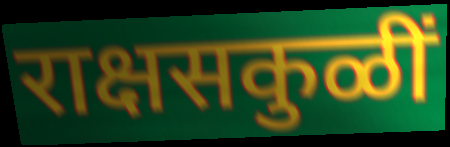
राक्षसकुळीं